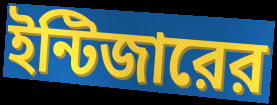
ইন্টিজারের